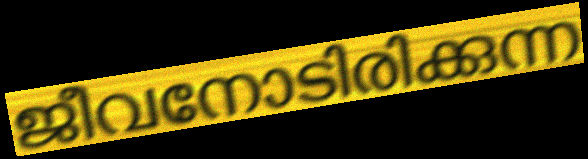
ജീവനോടിരിക്കുന്ന